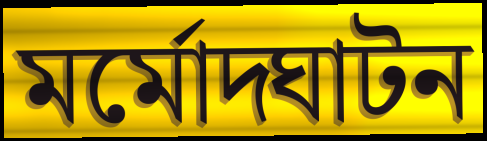
মর্মোদ্ঘাটন